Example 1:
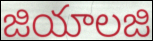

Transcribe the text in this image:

జియాలజి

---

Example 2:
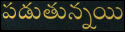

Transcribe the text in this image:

పడుతున్నయి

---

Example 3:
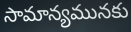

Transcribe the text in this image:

సామాన్యమునకు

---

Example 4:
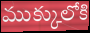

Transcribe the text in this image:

ముక్కులోకి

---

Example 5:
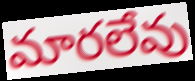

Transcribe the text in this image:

మారలేవు